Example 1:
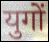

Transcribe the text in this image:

युगों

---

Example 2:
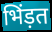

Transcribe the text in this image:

भिंड़त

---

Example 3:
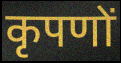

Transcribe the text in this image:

कृपणों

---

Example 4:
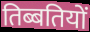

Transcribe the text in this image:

तिब्बतियों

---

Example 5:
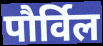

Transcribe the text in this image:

पौर्विल